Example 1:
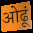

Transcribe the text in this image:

ओढूं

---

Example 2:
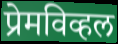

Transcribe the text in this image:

प्रेमविव्हल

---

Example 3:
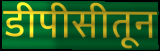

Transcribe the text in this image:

डीपीसीतून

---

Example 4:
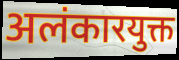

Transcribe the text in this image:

अलंकारयुक्त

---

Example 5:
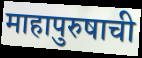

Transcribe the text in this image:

माहापुरुषाची